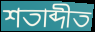
শতাব্দীত